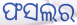
ଫସଲର